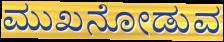
ಮುಖನೋಡುವ